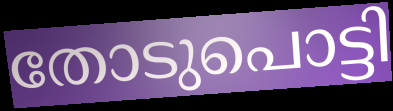
തോടുപൊട്ടി